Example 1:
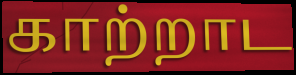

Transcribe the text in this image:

காற்றாட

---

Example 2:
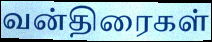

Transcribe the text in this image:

வன்திரைகள்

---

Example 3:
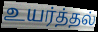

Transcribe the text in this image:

உயர்த்தல்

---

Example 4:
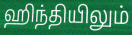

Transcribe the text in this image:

ஹிந்தியிலும்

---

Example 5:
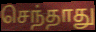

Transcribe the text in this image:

செந்தாது